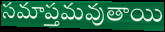
సమాప్తమవుతాయి